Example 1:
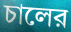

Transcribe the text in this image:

চালের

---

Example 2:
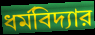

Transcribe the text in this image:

ধর্মবিদ্যার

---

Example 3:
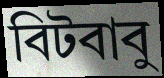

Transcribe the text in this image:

বিটবাবু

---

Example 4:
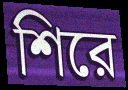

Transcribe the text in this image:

শিরে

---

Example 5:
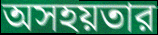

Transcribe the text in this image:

অসহয়তার